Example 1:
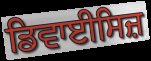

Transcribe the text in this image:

ਡਿਵਾਈਸਿਜ਼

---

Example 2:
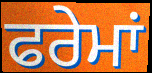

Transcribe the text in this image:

ਫਰੇਮਾਂ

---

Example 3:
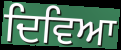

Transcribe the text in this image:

ਦਿਵਿਆ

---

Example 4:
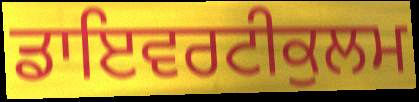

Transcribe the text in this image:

ਡਾਇਵਰਟੀਕੁਲਮ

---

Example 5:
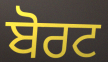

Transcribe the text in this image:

ਬੋਰਟ